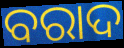
ବରାଦ